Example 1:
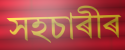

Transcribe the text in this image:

সহচাৰীৰ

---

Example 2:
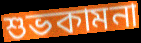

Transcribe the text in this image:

শুভকামনা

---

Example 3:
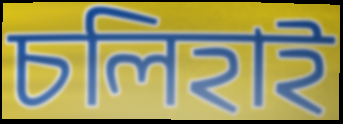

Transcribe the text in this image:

চলিহাই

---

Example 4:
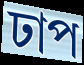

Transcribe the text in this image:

ঢাপ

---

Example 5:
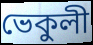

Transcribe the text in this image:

ভেকুলী